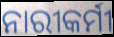
ନାରୀକର୍ମୀ